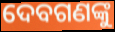
ଦେବଗଣଙ୍କୁ